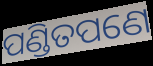
ପଣ୍ଡିତପଣେ